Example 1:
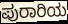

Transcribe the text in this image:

ಪುರಾರಿಯ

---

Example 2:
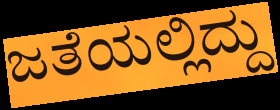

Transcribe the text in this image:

ಜತೆಯಲ್ಲಿದ್ದು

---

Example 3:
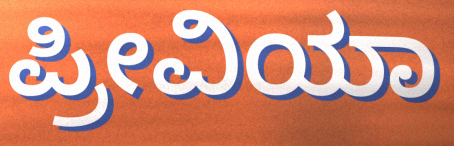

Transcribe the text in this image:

ಪ್ರೀವಿಯಾ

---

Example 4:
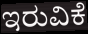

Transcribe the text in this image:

ಇರುವಿಕೆ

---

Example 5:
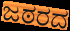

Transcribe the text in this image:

ಜಠರದ